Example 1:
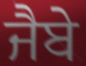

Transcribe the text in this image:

ਜੈਬੇ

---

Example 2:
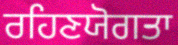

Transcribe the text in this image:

ਰਹਿਣਯੋਗਤਾ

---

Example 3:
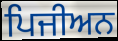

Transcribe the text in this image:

ਪਿਜੀਅਨ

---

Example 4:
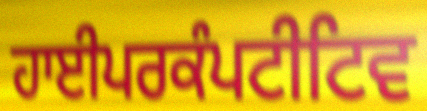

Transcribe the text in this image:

ਹਾਈਪਰਕੰਪਟੀਟਿਵ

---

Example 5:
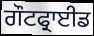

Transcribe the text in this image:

ਗੌਟਫ੍ਰਾਈਡ